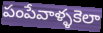
పంపేవాళ్ళకెలా